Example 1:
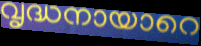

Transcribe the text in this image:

വൃദ്ധനായാറെ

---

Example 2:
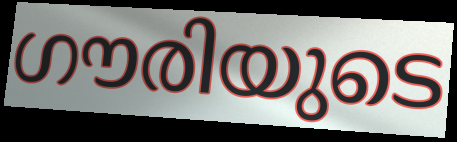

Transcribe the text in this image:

ഗൗരിയുടെ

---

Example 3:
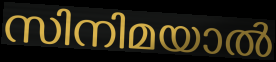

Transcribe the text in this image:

സിനിമയാൽ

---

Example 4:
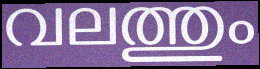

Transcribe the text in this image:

വലത്തും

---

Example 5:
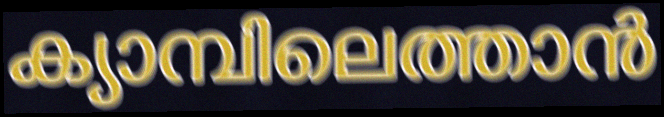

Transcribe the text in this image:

ക്യാമ്പിലെത്താൻ